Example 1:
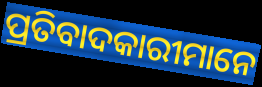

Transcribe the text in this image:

ପ୍ରତିବାଦକାରୀମାନେ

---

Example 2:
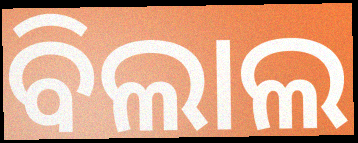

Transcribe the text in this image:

ବିଲାଲ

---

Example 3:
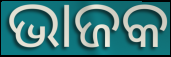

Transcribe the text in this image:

ଭାଜକ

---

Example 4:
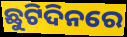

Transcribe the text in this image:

ଛୁଟିଦିନରେ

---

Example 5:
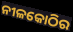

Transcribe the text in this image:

ନୀଳକୋଠିର